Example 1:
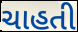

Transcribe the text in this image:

ચાહતી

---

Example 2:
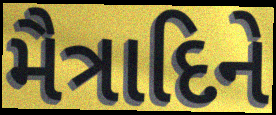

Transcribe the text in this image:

મૈત્રાદિને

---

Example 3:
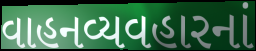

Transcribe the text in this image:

વાહનવ્યવહારનાં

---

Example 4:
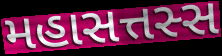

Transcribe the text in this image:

મહાસત્તસ્સ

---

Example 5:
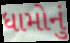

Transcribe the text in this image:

ધામોનું